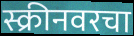
स्क्रीनवरचा